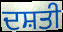
ਦਸ਼ਤੀ